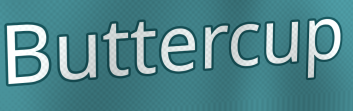
Buttercup